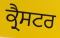
ਕ੍ਰੈਸਟਰ